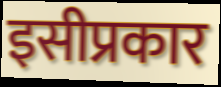
इसीप्रकार